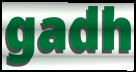
gadh